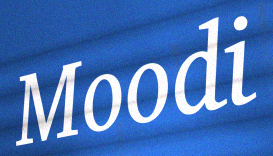
Moodi